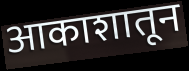
आकाशातून